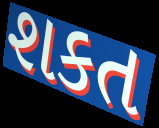
શકત